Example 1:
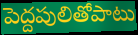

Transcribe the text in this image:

పెద్దపులితోపాటు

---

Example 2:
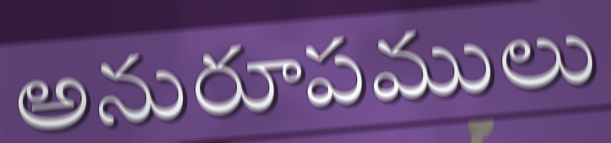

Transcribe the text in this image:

అనురూపములు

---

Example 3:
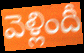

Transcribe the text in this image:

వెళ్లిందీ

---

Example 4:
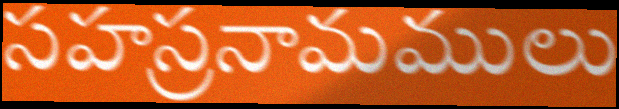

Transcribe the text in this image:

సహస్రనామములు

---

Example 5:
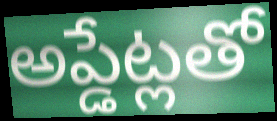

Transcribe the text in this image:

అప్డేట్లతో